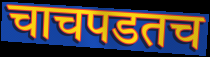
चाचपडतच